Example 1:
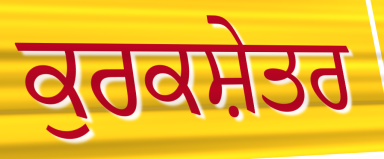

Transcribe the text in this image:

ਕੁਰਕਸ਼ੇਤਰ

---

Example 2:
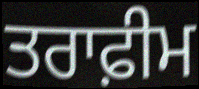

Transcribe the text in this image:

ਤਰਾਫ਼ੀਮ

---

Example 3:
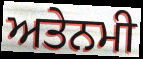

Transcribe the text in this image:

ਅਤੇਨਮੀ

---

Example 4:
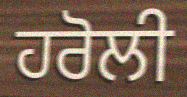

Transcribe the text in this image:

ਹਰੋਲੀ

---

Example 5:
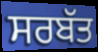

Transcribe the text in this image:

ਸਰਬੱਤ